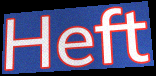
Heft